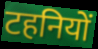
टहनियों